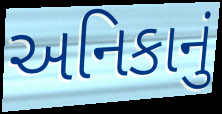
અનિકાનું